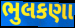
ભુલકણા